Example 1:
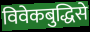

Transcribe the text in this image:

विवेकबुद्धिसे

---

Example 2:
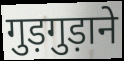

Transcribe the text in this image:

गुड़गुड़ाने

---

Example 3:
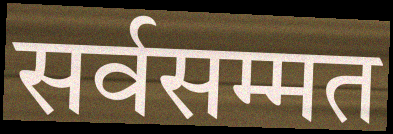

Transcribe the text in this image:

सर्वसम्मत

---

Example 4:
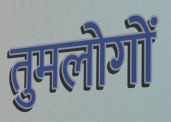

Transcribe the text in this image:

तुमलोगों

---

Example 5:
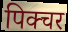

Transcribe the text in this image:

पिक्चर